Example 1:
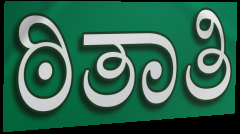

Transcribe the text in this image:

ಠಿತಾತಿ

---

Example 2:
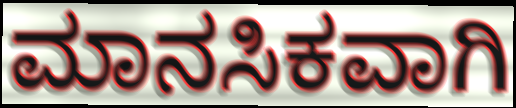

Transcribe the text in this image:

ಮಾನಸಿಕವಾಗಿ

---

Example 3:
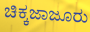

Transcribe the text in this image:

ಚಿಕ್ಕಜಾಜೂರು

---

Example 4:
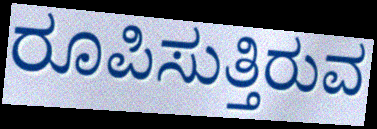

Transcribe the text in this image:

ರೂಪಿಸುತ್ತಿರುವ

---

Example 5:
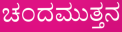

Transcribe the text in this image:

ಚಂದಮುತ್ತನ